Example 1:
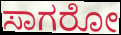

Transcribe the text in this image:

ಸಾಗರೋ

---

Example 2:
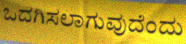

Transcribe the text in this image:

ಒದಗಿಸಲಾಗುವುದೆಂದು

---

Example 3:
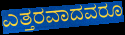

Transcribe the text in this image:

ಎತ್ತರವಾದವರೂ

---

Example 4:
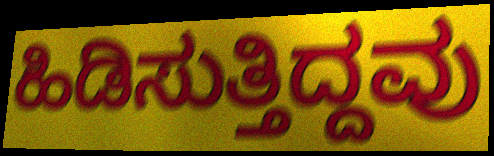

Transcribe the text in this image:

ಹಿಡಿಸುತ್ತಿದ್ದವು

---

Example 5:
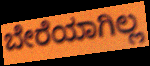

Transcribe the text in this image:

ಬೇರೆಯಾಗಿಲ್ಲ